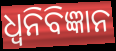
ଧ୍ୱନିବିଜ୍ଞାନ